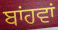
ਬਾਂਹਵਾਂ